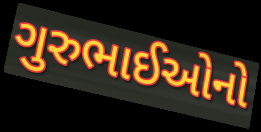
ગુરુભાઈઓનો